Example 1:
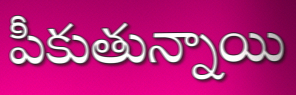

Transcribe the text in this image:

పీకుతున్నాయి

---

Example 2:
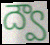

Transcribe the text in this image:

ద్వౌ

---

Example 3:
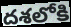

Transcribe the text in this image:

దశలోకి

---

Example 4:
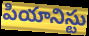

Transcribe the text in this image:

పియానిస్టు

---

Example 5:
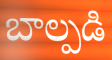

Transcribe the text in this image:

బాల్పడి